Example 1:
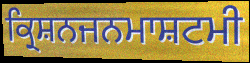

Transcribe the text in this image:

ਕ੍ਰਿਸ਼ਨਜਨਮਾਸ਼ਟਮੀ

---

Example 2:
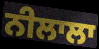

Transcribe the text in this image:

ਨੀਲਾਲਾ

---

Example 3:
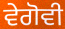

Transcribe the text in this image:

ਵੇਗੋਵੀ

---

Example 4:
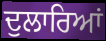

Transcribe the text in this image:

ਦੁਲਾਰਿਆਂ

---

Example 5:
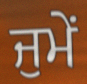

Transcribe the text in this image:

ਜੁਮੇਂ